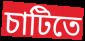
চাটিতে